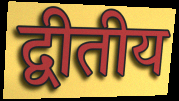
द्वीतीय